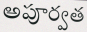
అపూర్వత